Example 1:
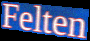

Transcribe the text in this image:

Felten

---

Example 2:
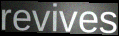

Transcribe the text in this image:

revives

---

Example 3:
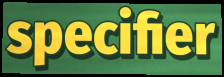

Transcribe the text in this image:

specifier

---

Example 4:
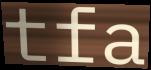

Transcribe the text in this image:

tfa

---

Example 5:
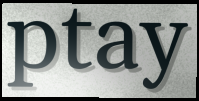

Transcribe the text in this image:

ptay